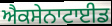
ਐਕਸੇਨਾਟਾਈਡ